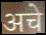
अचे